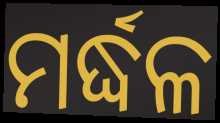
ମର୍ଦ୍ଧଳ